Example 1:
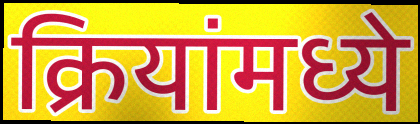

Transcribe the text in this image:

क्रियांमध्ये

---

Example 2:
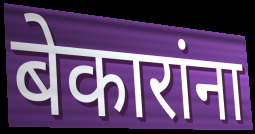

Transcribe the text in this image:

बेकारांना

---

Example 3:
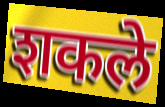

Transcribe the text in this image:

शकले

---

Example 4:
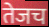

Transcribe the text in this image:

तेजच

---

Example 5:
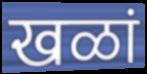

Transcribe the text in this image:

खळां